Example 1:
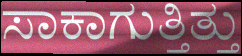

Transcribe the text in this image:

ಸಾಕಾಗುತ್ತಿತ್ತು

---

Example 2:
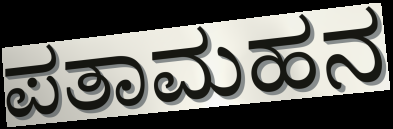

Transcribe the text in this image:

ಪತಾಮಹನ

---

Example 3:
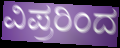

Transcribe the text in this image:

ವಿಪ್ರರಿಂದ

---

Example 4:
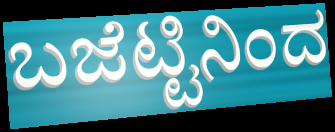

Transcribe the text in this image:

ಬಜೆಟ್ಟಿನಿಂದ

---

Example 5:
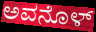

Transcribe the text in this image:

ಅವನೊಳ್